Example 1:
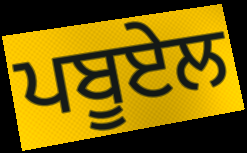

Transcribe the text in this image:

ਪਬੂਏਲ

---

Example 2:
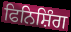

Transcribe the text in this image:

ਫਿਨਿਸ਼ਿੰਗ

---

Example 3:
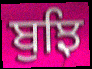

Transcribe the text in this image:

ਬੁਝਿ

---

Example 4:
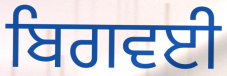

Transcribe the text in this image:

ਬਿਗਵਈ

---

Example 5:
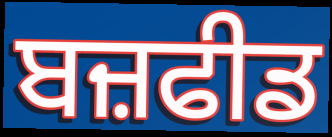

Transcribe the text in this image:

ਬਜ਼ਫੀਡ